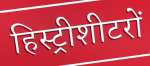
हिस्ट्रीशीटरों